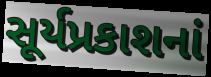
સૂર્યપ્રકાશનાં